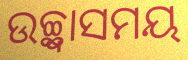
ଉଚ୍ଛ୍ୱାସମୟ